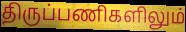
திருப்பணிகளிலும்